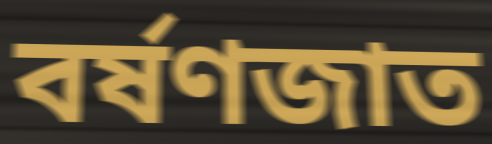
বর্ষণজাত